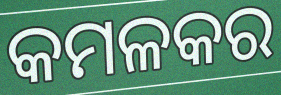
କମଳକର